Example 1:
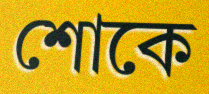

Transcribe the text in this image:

শোকে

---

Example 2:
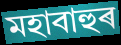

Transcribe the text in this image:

মহাবাহুৰ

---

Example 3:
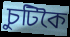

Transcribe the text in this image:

চুটিকৈ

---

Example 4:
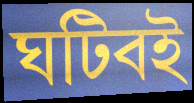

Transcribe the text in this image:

ঘটিবই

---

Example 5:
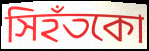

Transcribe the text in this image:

সিহঁতকো